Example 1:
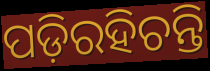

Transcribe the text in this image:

ପଡ଼ିରହିଚନ୍ତି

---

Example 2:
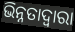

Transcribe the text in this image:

ଭିନ୍ନତାଦ୍ୱାରା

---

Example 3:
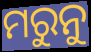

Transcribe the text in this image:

ମରୁନୁ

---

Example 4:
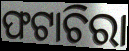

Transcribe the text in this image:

ଫଟାଚିରା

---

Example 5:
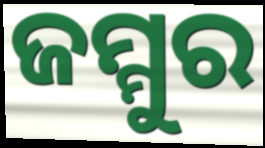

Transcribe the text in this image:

ଜମ୍ମୁର